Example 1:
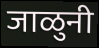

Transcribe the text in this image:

जाळुनी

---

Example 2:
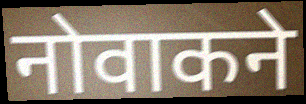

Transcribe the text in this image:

नोवाकने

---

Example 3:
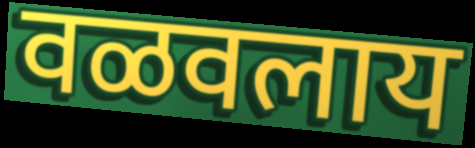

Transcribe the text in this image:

वळवलाय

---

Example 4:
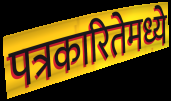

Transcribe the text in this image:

पत्रकारितेमध्ये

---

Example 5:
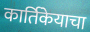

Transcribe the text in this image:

कार्तिकेयाचा